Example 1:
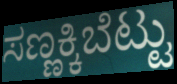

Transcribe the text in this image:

ಸಣ್ಣಕ್ಕಿಬೆಟ್ಟು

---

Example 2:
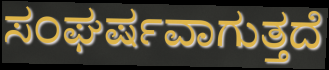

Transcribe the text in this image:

ಸಂಘರ್ಷವಾಗುತ್ತದೆ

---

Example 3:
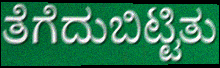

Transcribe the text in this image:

ತೆಗೆದುಬಿಟ್ಟಿತು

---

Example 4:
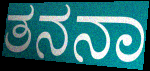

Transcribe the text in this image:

ತನನಾ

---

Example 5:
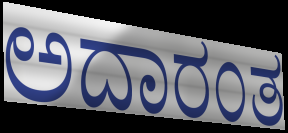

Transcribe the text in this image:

ಅದಾರಂತ